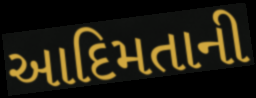
આદિમતાની